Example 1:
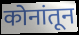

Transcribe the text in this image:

कोनांतून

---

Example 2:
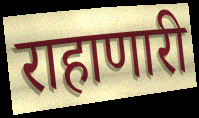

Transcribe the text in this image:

राहाणारी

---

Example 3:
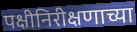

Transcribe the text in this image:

पक्षीनिरीक्षणाच्या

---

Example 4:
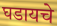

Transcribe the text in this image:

घडायचे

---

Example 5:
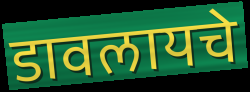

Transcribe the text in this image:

डावलायचे